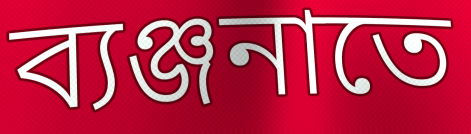
ব্যঞ্জনাতে